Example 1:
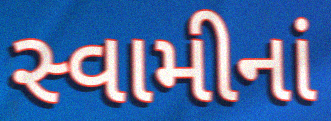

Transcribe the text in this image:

સ્વામીનાં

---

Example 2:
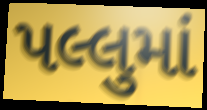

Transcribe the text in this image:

પલ્લુમાં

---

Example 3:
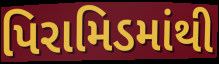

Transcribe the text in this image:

પિરામિડમાંથી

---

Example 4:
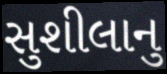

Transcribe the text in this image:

સુશીલાનુ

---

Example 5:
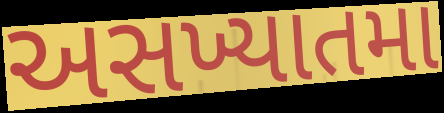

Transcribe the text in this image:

અસખ્યાતમા